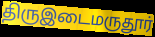
திருஇடைமருதூர்